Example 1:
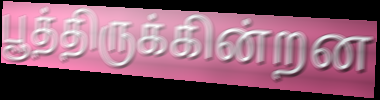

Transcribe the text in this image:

பூத்திருக்கின்றன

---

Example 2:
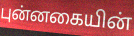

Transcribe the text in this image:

புன்னகையின்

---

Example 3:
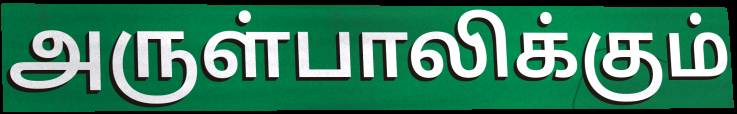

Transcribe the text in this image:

அருள்பாலிக்கும்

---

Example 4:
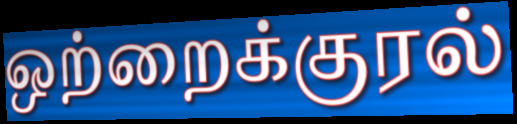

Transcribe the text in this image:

ஒற்றைக்குரல்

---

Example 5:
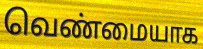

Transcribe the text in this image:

வெண்மையாக